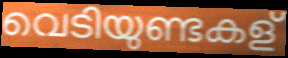
വെടിയുണ്ടകള്